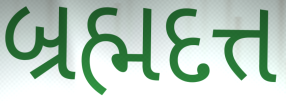
બ્રહ્મદત્ત